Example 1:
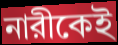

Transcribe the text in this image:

নারীকেই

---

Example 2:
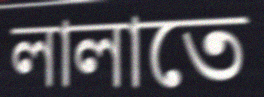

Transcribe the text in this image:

লালাতে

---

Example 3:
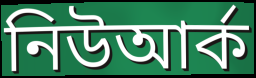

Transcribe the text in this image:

নিউআর্ক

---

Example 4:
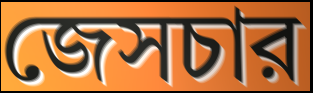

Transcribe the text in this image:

জেসচার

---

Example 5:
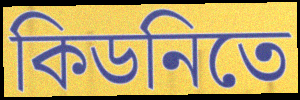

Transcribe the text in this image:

কিডনিতে